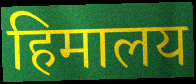
हिमालय